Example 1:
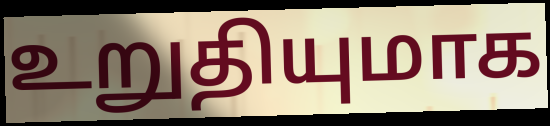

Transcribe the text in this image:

உறுதியுமாக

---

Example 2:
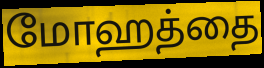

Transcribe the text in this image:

மோஹத்தை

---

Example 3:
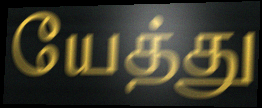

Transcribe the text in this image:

யேத்து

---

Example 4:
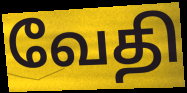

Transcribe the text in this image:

வேதி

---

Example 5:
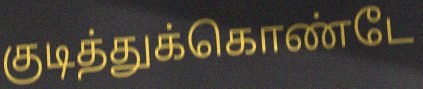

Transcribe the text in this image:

குடித்துக்கொண்டே